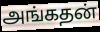
அங்கதன்